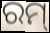
ରମ୍